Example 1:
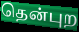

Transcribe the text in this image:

தென்புற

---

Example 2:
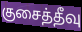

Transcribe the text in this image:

குசைத்தீவு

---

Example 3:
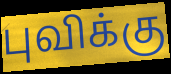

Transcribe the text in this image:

புவிக்கு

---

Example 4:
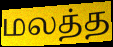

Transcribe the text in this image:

மலத்த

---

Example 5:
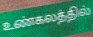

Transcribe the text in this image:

உண்கலத்தில்